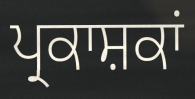
ਪ੍ਰਕਾਸ਼ਕਾਂ